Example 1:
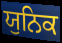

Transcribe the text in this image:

ਯੁਨਿਕ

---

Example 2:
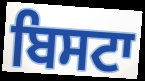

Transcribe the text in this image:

ਬਿਸਟਾ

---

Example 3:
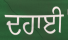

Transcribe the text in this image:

ਦਹਾਈ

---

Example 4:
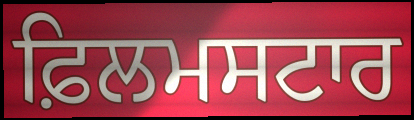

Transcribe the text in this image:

ਫ਼ਿਲਮਸਟਾਰ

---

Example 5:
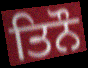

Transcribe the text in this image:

ਤਿਨੌ